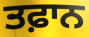
ਤਫ਼ਾਨ